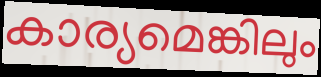
കാര്യമെങ്കിലും